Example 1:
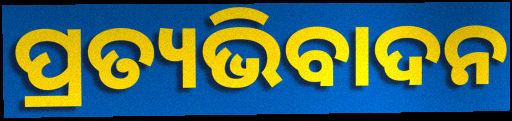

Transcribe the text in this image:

ପ୍ରତ୍ୟଭିବାଦନ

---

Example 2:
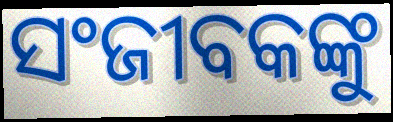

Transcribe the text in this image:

ସଂଜୀବକଙ୍କୁ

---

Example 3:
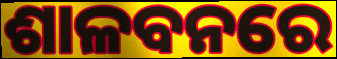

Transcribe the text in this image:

ଶାଳବନରେ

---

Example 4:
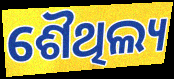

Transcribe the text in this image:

ଶୈଥିଲ୍ୟ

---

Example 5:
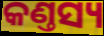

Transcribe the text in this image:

କଣ୍ତସ୍ୟ